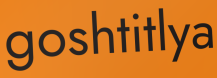
goshtitlya